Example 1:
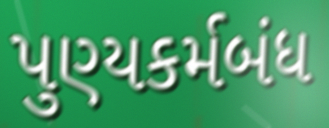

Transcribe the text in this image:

પુણ્યકર્મબંધ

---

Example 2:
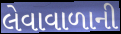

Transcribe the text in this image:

લેવાવાળાની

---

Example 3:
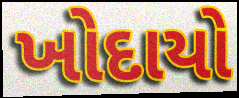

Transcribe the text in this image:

ખોદાયો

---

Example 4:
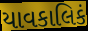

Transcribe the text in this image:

યાવકાલિકં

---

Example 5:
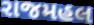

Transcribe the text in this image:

રાજમહલ